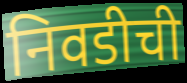
निवडीची